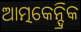
ଆତ୍ମକେନ୍ଦ୍ରିକ